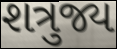
શત્રુજ્ય